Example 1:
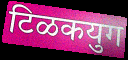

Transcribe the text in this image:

टिळकयुग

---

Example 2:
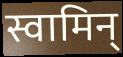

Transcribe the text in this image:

स्वामिन्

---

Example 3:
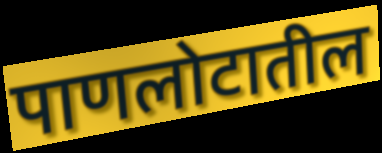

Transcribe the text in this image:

पाणलोटातील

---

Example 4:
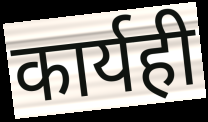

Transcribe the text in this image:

कार्यही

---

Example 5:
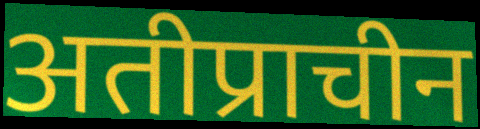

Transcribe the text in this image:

अतीप्राचीन